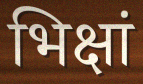
भिक्षां